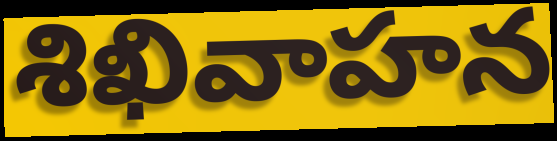
శిఖివాహన